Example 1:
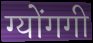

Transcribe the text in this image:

ग्योंगगी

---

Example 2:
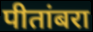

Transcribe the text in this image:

पीतांबरा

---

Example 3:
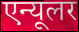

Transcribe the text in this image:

एन्यूलर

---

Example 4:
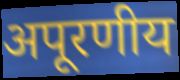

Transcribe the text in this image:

अपूरणीय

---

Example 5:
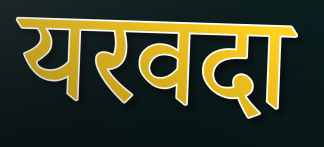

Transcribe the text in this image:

यरवदा